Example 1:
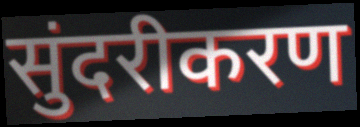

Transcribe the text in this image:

सुंदरीकरण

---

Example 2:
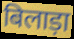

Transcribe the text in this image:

बिलाड़ा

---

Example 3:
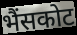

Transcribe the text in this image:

भैंसकोट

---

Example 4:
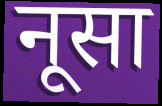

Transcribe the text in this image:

नूसा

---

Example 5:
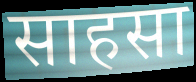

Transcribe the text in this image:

साहसा